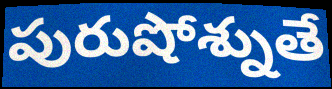
పురుషోశ్నుతే